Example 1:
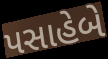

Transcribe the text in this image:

પસાહેબે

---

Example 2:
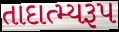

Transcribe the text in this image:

તાદાત્મ્યરૂપ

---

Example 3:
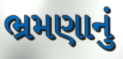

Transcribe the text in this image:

ભ્રમણાનું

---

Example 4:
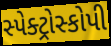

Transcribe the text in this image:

સ્પેક્ટ્રોસ્કોપી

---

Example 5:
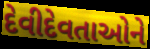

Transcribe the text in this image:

દેવીદેવતાઓને